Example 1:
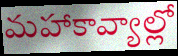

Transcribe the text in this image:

మహాకావ్యాల్లో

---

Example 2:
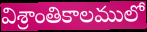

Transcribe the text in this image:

విశ్రాంతికాలములో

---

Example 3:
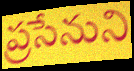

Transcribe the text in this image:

ప్రసేనుని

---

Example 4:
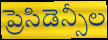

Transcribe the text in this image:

ప్రెసిడెన్సీల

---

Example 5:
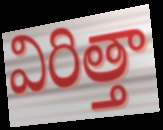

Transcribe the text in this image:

విరిత్తా